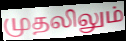
முதலிலும்